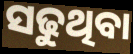
ସଢୁଥିବା